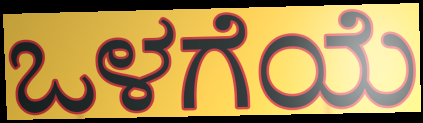
ಒಳಗೆಯೆ